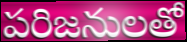
పరిజనులతో